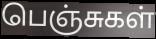
பெஞ்சுகள்